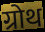
ग्रोथ